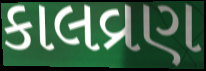
કાલવ્રણ